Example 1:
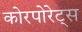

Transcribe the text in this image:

कोरपोरेट्स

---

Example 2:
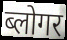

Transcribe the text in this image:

ब्लोगर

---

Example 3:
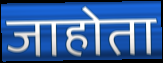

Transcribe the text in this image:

जाहोता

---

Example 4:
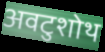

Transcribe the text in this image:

अवटुशोथ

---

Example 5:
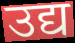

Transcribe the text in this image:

उद्य